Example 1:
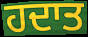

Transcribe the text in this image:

ਹਦਾਤ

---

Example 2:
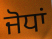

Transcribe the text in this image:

ਜੋਧਾਂ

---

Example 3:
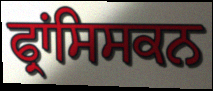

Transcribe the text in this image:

ਫ੍ਰਾਂਸਿਸਕਨ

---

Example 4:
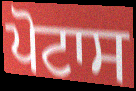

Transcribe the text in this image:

ਪੋਟਾਸ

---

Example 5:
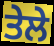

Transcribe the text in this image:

ਤੇਲੇ